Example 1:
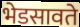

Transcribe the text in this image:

भेडसावते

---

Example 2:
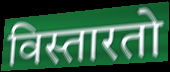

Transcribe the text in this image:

विस्तारतो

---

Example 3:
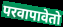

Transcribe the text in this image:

परवापावेतो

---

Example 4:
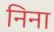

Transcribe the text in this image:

निना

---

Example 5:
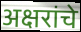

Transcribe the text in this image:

अक्षरांचे